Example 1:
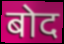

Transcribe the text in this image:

बोद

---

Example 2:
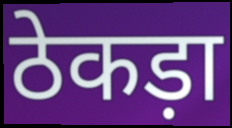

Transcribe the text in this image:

ठेकड़ा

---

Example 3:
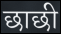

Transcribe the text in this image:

छाछी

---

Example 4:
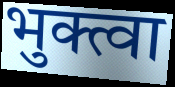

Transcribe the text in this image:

भुक्त्वा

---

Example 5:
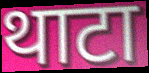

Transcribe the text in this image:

थाटा